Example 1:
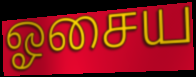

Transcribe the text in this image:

ஓசைய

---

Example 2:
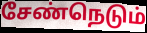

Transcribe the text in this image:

சேண்நெடும்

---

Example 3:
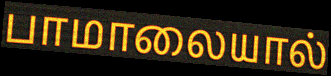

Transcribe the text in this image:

பாமாலையால்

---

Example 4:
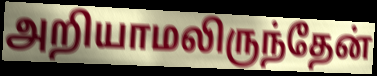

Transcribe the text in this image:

அறியாமலிருந்தேன்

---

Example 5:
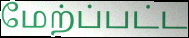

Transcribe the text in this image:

மேற்ப்பட்ட